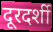
दूरदर्शी